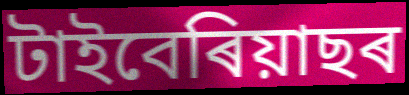
টাইবেৰিয়াছৰ